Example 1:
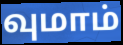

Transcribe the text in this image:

வுமாம்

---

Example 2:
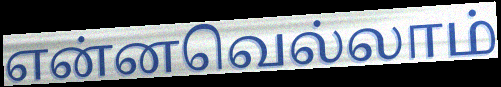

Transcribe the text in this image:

என்னவெல்லாம்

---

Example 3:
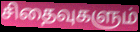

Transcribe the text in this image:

சிதைவுகளும்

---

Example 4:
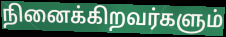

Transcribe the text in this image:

நினைக்கிறவர்களும்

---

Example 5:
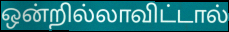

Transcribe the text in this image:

ஒன்றில்லாவிட்டால்